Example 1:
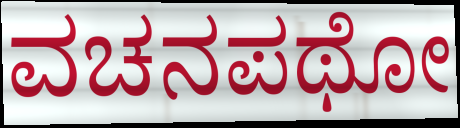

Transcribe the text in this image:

ವಚನಪಥೋ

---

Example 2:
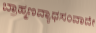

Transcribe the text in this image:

ಬ್ರಾಹ್ಮಣವ್ಯಾಧಸಂವಾದೇ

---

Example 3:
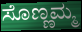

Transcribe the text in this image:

ಸೊಣ್ಣಮ್ಮ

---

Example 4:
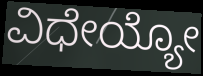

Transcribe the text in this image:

ವಿಧೇಯ್ಯೋ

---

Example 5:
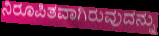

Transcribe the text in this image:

ನಿರೂಪಿತವಾಗಿರುವುದನ್ನು